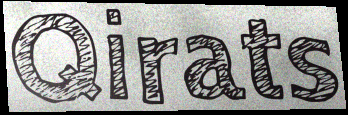
Qirats